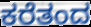
ಕರೆತಂದ